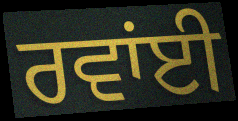
ਰਵਾਂਈ